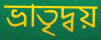
ভ্রাতৃদ্বয়